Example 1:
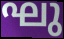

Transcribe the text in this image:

ഘു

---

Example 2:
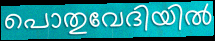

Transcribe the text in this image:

പൊതുവേദിയിൽ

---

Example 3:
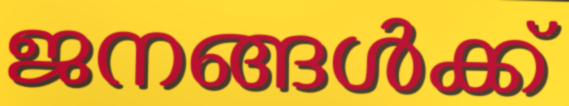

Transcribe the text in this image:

ജനങ്ങൾക്ക്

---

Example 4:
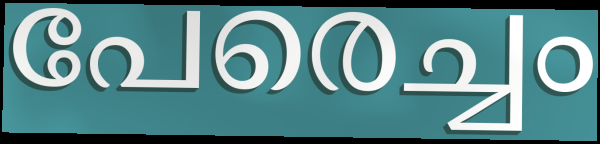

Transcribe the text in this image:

പേരെച്ചം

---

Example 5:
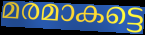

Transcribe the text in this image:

മരമാകട്ടെ